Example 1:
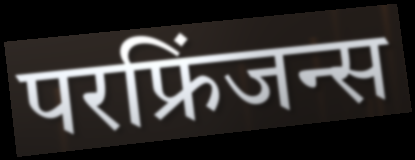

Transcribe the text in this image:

परफ्रिंजन्स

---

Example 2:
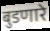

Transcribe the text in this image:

बुडणारे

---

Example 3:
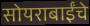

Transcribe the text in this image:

सोयराबाईंचे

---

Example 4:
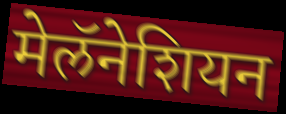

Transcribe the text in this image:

मेलॅनेशियन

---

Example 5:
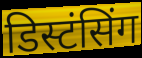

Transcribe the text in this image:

डिस्टंसिंग